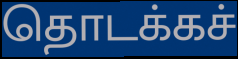
தொடக்கச்